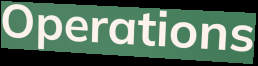
Operations